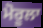
ਮੋਰੂਲਾ